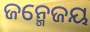
ଜନ୍ମେଜୟ